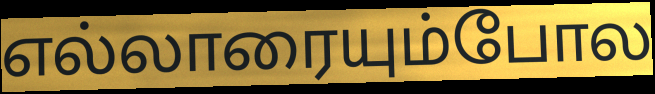
எல்லாரையும்போல